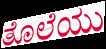
ತೊಲೆಯು